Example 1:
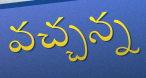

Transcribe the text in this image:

వచ్చన్న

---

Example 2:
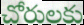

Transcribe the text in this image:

చోరులకు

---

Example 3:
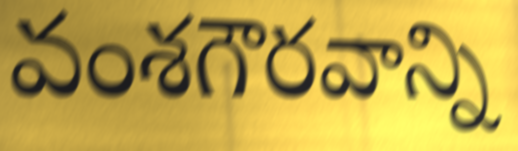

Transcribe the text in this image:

వంశగౌరవాన్ని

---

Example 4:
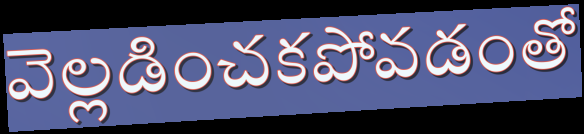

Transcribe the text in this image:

వెల్లడించకపోవడంతో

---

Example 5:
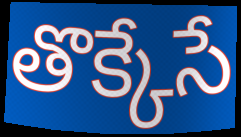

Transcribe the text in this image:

తొక్కేసే